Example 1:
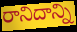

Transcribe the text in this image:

రానిదాన్ని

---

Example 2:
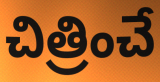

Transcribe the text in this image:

చిత్రించే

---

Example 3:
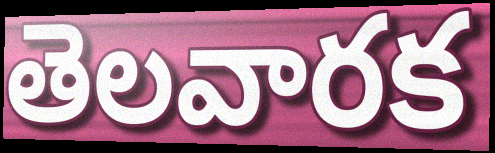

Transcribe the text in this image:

తెలవారక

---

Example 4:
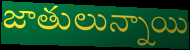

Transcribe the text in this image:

జాతులున్నాయి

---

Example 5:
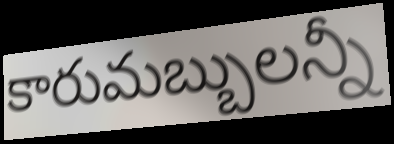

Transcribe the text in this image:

కారుమబ్బులన్నీ